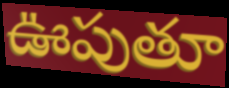
ఊపుతూ